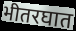
भीतरघात